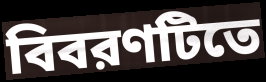
বিবরণটিতে